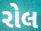
રોલ